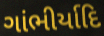
ગાંભીર્યાદિ